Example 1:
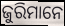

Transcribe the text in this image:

ଜୁରିମାନେ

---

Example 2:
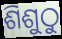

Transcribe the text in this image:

ଶିଶୁଠୁ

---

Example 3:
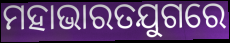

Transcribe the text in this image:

ମହାଭାରତଯୁଗରେ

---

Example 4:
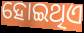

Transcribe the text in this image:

ହୋଇଥିଏ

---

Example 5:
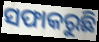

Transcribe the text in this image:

ସଫାକରୁଛି